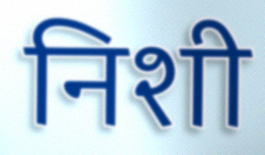
निशी